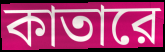
কাতারে